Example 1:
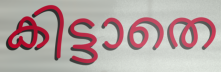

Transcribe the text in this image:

കിട്ടാതെ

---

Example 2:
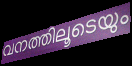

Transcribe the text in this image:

വനത്തിലൂടെയും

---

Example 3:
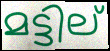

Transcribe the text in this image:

മട്ടില്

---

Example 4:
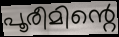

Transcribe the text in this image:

പൂരീമിന്റെ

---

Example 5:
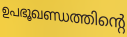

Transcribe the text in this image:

ഉപഭൂഖണ്ഡത്തിന്റെ